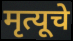
मृत्यूचे